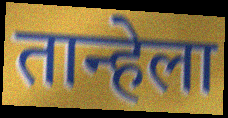
तान्हेला